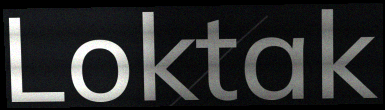
Loktak